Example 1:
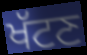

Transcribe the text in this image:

ਖੱਟਣ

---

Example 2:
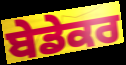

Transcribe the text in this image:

ਬੇਡੇਕਰ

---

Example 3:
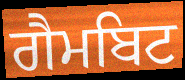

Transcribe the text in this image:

ਗੈਮਬਿਟ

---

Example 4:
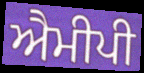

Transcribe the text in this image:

ਐਮੀਪੀ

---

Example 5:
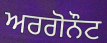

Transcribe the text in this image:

ਅਰਗੋਨੌਟ